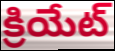
క్రియేట్